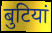
बुटियां